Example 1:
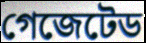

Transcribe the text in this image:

গেজেটেড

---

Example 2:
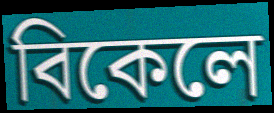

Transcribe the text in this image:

বিকেলে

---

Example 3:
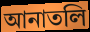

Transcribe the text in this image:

আনাতলি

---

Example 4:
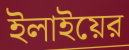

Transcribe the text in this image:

ইলাইয়ের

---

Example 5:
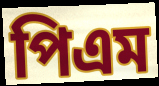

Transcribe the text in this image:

পিএম